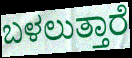
ಬಳಲುತ್ತಾರೆ